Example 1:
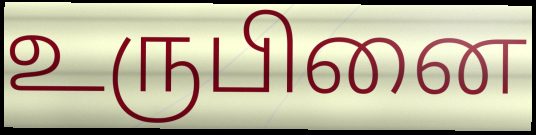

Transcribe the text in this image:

உருபினை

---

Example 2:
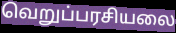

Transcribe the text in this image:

வெறுப்பரசியலை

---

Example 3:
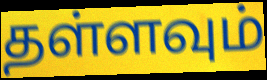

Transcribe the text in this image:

தள்ளவும்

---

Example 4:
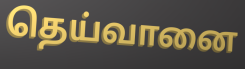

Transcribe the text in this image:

தெய்வானை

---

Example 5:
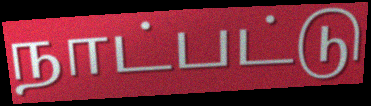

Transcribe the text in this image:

நாட்பட்டு